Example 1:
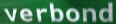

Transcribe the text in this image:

verbond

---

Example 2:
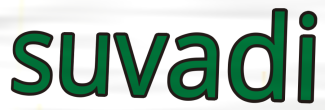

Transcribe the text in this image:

suvadi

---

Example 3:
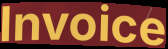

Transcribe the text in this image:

Invoice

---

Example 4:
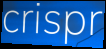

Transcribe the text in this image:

crispr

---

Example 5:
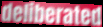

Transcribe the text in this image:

deliberated